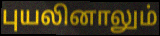
புயலினாலும்